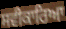
ਸਵੀਕਾਰਿਆ